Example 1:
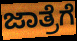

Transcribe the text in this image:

ಜಾತ್ರೆಗೆ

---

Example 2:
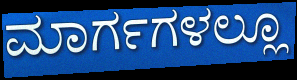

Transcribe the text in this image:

ಮಾರ್ಗಗಳಲ್ಲೂ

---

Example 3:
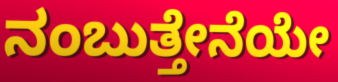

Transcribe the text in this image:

ನಂಬುತ್ತೇನೆಯೇ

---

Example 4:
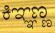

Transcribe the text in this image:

ಕಿಞ್ಞಣ್ಣ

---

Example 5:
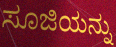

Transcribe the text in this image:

ಸೂಜಿಯನ್ನು